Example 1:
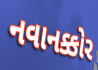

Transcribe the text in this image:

નવાનક્કોર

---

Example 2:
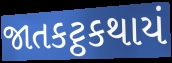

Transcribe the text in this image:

જાતકટ્ઠકથાયં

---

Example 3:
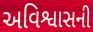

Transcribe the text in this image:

અવિશ્વાસની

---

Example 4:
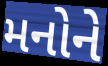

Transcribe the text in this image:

મનોને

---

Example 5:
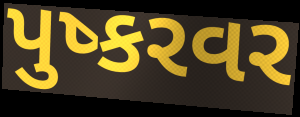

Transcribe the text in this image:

પુષ્કરવર